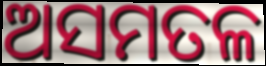
ଅସମତଳ